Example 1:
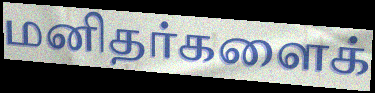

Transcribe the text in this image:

மனிதர்களைக்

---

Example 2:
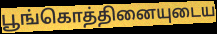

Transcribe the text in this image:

பூங்கொத்தினையுடைய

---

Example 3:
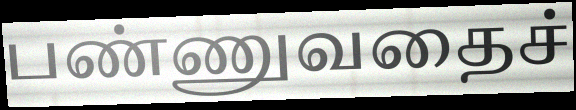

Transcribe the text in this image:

பண்ணுவதைச்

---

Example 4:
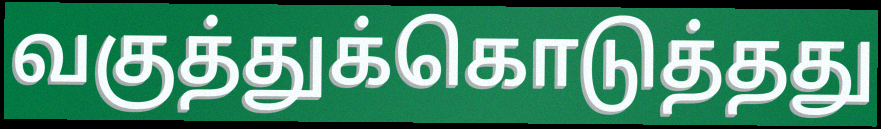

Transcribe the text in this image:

வகுத்துக்கொடுத்தது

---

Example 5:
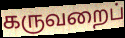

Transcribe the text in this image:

கருவறைப்